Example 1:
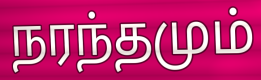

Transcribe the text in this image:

நரந்தமும்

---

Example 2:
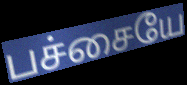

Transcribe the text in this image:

பச்சையே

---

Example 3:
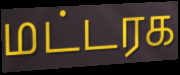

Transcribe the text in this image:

மட்டரக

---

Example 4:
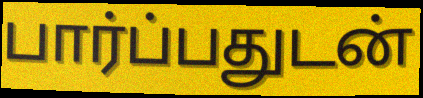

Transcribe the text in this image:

பார்ப்பதுடன்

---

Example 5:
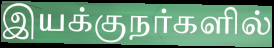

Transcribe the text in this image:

இயக்குநர்களில்